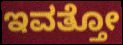
ಇವತ್ತೋ